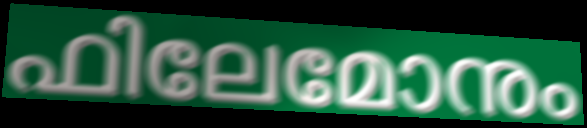
ഫിലേമോനും